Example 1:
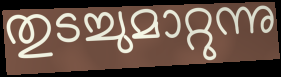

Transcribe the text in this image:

തുടച്ചുമാറ്റുന്നു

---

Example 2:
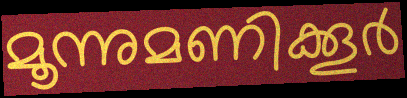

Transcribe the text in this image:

മൂന്നുമണിക്കൂർ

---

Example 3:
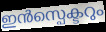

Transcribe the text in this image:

ഇൻസ്പെക്ടറും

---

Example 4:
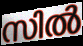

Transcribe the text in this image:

സിൽ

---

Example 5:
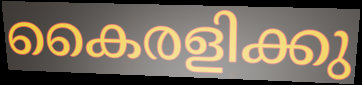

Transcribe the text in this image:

കൈരളിക്കു